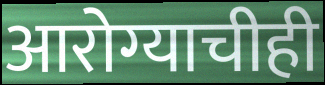
आरोग्याचीही